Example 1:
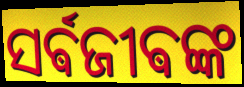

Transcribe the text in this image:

ସର୍ଵଜୀଵଙ୍କ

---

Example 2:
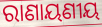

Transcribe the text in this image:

ରାଣାୟଣୀୟ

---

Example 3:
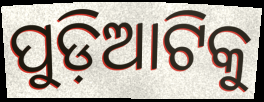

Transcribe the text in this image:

ପୁଡ଼ିଆଟିକୁ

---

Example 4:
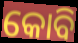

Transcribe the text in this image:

କୋବି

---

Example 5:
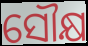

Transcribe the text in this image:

ସୌକ୍ଷ